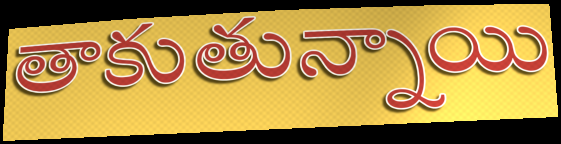
తాకుతున్నాయి